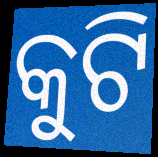
କୁଟି